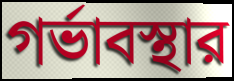
গর্ভাবস্থার